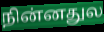
நின்னதுல